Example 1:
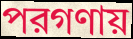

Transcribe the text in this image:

পরগণায়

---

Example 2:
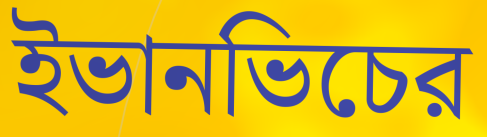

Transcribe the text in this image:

ইভানভিচের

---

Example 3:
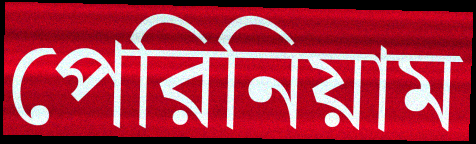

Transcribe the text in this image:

পেরিনিয়াম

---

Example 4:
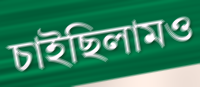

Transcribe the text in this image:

চাইছিলামও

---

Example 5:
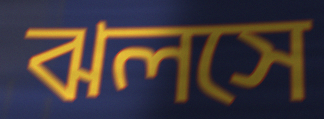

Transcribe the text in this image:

ঝলসে